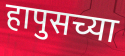
हापुसच्या